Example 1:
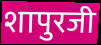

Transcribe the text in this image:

शापुरजी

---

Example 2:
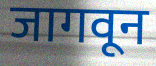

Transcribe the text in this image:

जागवून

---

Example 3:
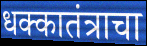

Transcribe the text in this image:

धक्कातंत्राचा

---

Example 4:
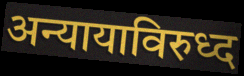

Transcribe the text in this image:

अन्यायाविरुध्द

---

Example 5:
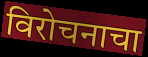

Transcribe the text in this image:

विरोचनाचा